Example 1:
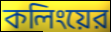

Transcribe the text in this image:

কলিংয়ের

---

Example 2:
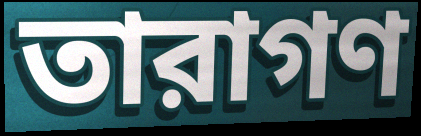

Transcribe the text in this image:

তারাগণ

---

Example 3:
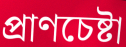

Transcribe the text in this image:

প্রাণচেষ্টা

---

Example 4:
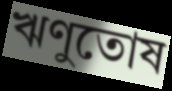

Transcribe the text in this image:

ঋণুতোষ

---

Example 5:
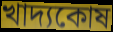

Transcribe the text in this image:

খাদ্যকোষ